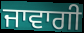
ਜਾਵਾਗੀ